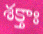
శక్తాః